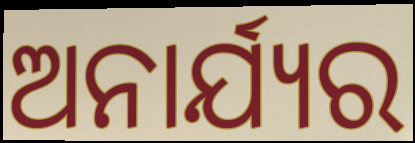
ଅନାର୍ଯ୍ୟର